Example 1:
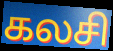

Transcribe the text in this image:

கலசி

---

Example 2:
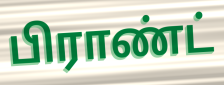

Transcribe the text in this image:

பிராண்ட்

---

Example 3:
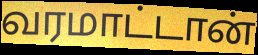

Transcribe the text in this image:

வரமாட்டான்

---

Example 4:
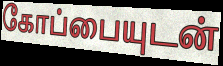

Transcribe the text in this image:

கோப்பையுடன்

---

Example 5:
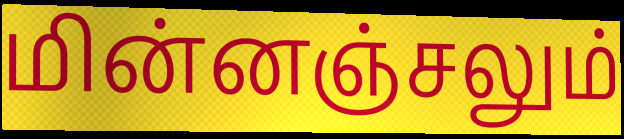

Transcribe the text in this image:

மின்னஞ்சலும்